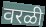
वरळी